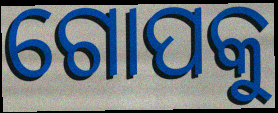
ଗୋପକୁ